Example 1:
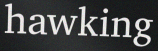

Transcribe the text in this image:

hawking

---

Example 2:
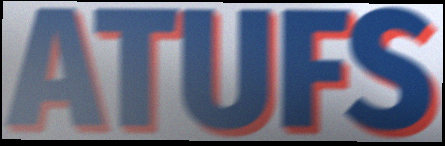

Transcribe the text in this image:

ATUFS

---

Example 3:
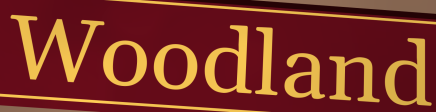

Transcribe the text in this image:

Woodland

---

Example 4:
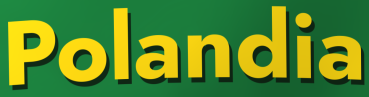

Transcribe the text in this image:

Polandia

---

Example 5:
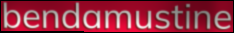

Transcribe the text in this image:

bendamustine